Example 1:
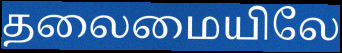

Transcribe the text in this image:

தலைமையிலே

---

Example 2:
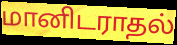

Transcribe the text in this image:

மானிடராதல்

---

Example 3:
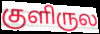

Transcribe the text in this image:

குளிருல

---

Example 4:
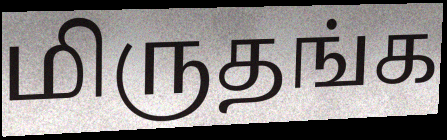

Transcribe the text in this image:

மிருதங்க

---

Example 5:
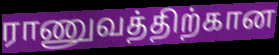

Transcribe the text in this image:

ராணுவத்திற்கான